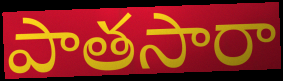
పాతసారా